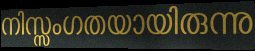
നിസ്സംഗതയായിരുന്നു